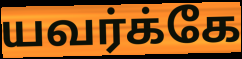
யவர்க்கே